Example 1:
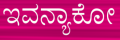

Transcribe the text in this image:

ಇವನ್ಯಾಕೋ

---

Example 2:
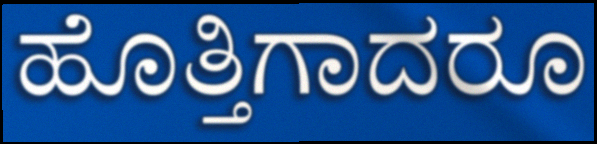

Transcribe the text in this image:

ಹೊತ್ತಿಗಾದರೂ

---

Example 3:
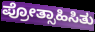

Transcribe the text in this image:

ಪ್ರೋತ್ಸಾಹಿಸಿತು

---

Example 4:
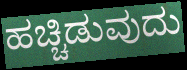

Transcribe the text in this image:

ಹಚ್ಚಿಡುವುದು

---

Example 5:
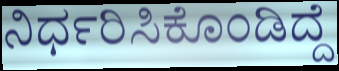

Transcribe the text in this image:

ನಿರ್ಧರಿಸಿಕೊಂಡಿದ್ದೆ